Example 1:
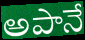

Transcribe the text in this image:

అపానే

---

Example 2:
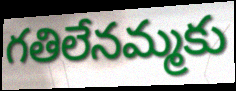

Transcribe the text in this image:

గతిలేనమ్మకు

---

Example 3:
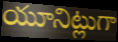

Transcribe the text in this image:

యూనిట్లుగా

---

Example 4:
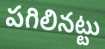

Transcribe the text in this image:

పగిలినట్టు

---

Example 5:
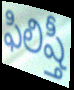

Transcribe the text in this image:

ఫిలిష్తీ